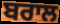
ਬਰਾਲ